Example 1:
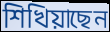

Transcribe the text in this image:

শিখিয়াছেন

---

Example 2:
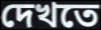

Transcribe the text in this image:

দেখতে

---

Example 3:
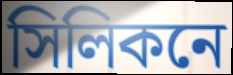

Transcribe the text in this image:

সিলিকনে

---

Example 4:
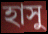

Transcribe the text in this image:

হাসু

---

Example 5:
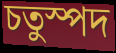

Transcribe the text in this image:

চতুস্পদ